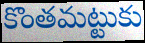
కొంతమట్టుకు